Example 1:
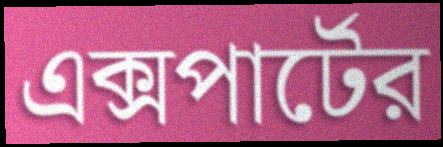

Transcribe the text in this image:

এক্সপার্টের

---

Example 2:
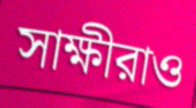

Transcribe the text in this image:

সাক্ষীরাও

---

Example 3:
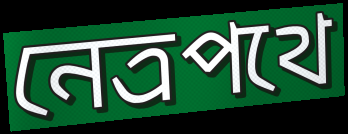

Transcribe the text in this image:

নেত্রপথে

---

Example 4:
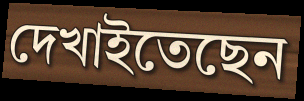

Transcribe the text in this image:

দেখাইতেছেন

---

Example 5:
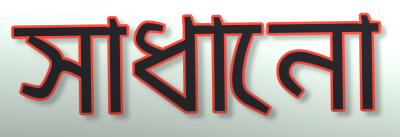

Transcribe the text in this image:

সাধানো